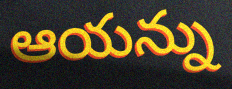
ఆయన్ను